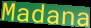
Madana